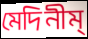
মেদিনীম্